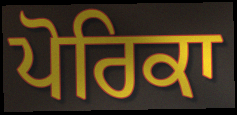
ਪੋਰਿਕਾ